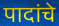
पादांचे